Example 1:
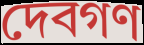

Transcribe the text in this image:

দেবগণ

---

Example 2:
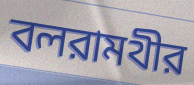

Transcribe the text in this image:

বলরামথীর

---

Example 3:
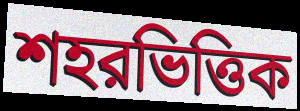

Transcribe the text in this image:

শহরভিত্তিক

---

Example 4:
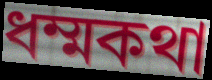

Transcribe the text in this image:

ধম্মকথা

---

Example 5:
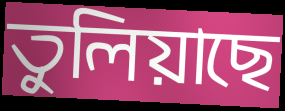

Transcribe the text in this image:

তুলিয়াছে